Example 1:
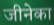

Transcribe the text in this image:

जीनेका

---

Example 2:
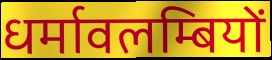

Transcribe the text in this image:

धर्मावलम्बियों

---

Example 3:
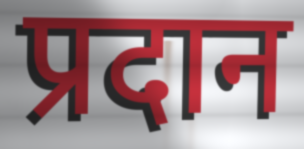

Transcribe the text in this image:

प्रदान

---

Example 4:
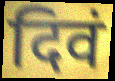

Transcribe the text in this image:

दिवं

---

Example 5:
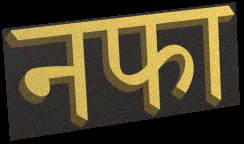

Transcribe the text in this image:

नफा